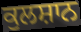
ਕੁਲਸ਼ਾਨ